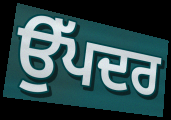
ਉੱਪਦਰ